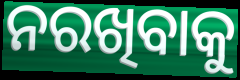
ନରଖିବାକୁ